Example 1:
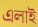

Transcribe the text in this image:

এলাই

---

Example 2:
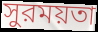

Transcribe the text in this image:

সুরময়তা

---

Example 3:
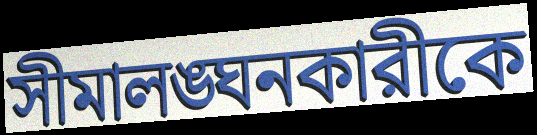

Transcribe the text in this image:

সীমালঙ্ঘনকারীকে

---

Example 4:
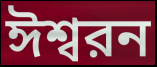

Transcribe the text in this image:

ঈশ্বরন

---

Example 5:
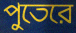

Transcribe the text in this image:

পুতেরে